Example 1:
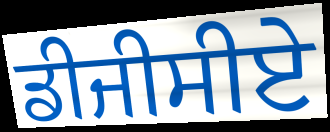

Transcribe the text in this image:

ਡੀਜੀਸੀਏ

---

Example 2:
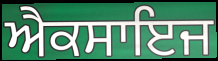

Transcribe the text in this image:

ਐਕਸਾਇਜ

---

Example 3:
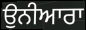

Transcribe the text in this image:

ਉਨੀਆਰਾ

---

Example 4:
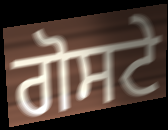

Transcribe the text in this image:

ਗੋਸਟੇ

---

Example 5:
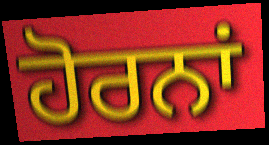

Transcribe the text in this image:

ਹੋਰਨਾਂ